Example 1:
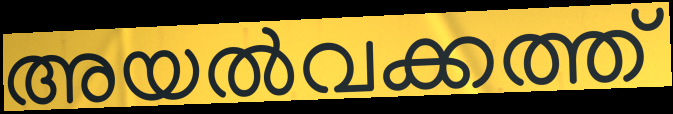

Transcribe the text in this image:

അയൽവക്കത്ത്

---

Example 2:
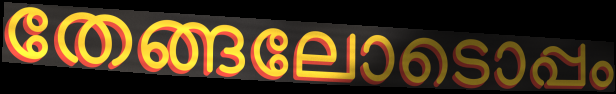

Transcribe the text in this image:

തേങ്ങലോടൊപ്പം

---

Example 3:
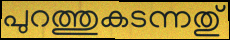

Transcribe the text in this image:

പുറത്തുകടന്നതു്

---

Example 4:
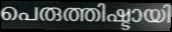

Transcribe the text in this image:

പെരുത്തിഷ്ടായി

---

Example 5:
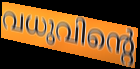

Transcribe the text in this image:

വധുവിന്റെ